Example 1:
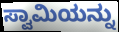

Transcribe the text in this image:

ಸ್ವಾಮಿಯನ್ನು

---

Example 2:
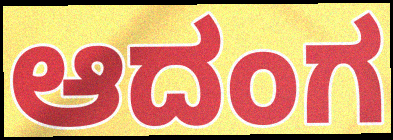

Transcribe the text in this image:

ಆದಂಗ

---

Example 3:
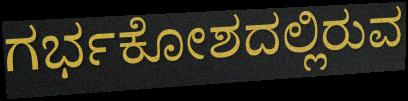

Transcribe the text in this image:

ಗರ್ಭಕೋಶದಲ್ಲಿರುವ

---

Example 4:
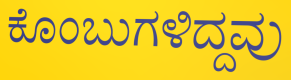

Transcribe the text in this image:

ಕೊಂಬುಗಳಿದ್ದವು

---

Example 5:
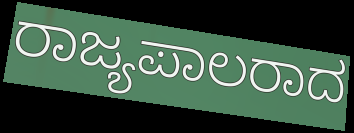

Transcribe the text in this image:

ರಾಜ್ಯಪಾಲರಾದ